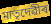
মাতৃদেৱীৰ